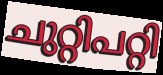
ചുറ്റിപറ്റി